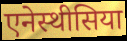
एनेस्थीसिया